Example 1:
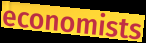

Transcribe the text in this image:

economists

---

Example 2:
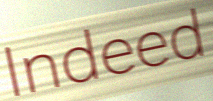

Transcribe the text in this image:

Indeed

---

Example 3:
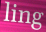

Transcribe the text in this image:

ling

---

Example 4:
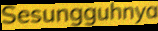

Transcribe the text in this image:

Sesungguhnya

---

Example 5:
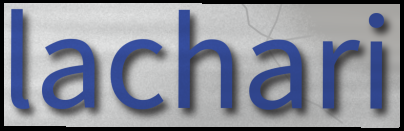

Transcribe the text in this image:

lachari